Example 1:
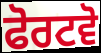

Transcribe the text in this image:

ਫੋਰਟਵੋ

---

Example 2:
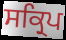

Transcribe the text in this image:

ਸਕ੍ਰਿਪ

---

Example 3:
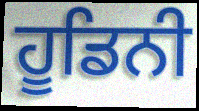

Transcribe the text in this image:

ਹੂਡਿਨੀ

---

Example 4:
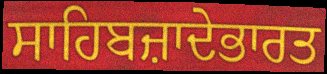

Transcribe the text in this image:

ਸਾਹਿਬਜ਼ਾਦੇਭਾਰਤ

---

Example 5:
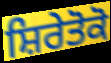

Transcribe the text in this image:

ਸ਼ਿਰੇਤੋਕੋ